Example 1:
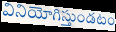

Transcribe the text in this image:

వినియోగిస్తుండటం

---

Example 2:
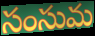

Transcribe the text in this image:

సంసుమ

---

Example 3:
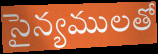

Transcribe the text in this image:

సైన్యములతో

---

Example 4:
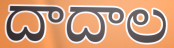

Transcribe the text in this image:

దాదాల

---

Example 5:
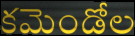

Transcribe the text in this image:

కమెండోల